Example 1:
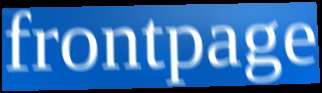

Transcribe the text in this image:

frontpage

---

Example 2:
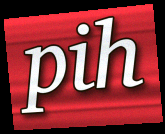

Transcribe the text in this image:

pih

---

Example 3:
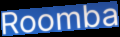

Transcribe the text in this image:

Roomba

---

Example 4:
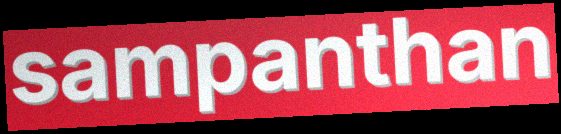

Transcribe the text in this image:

sampanthan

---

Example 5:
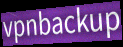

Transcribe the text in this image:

vpnbackup